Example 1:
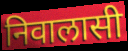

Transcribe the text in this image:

निवालासी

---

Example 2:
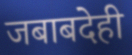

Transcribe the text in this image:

जबाबदेही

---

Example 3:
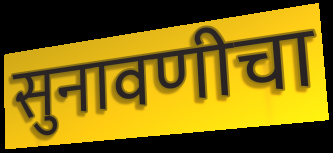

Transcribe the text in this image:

सुनावणीचा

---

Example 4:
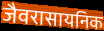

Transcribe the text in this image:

जैवरासायनिक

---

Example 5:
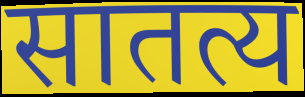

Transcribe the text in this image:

सातत्य